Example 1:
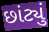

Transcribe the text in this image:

છાંટ્યું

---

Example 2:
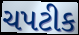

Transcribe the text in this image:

ચપટીક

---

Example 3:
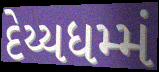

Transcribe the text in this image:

દેય્યધમ્મં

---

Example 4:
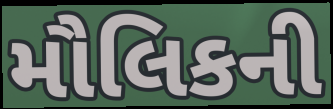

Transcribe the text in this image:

મૌલિકની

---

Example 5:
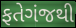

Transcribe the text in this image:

ફતેગંજથી